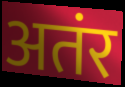
अतंर